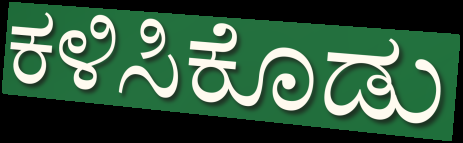
ಕಳಿಸಿಕೊಡು